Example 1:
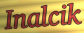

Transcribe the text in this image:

Inalcik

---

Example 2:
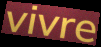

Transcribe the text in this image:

vivre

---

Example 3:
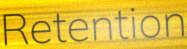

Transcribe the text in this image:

Retention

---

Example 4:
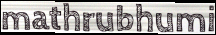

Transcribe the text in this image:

mathrubhumi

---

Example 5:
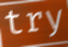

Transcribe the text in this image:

try